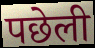
पछेली